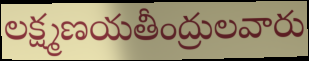
లక్ష్మణయతీంద్రులవారు